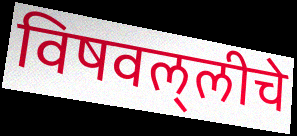
विषवल्लीचे